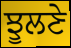
ਝੂਲਣੇ